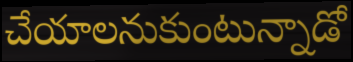
చేయాలనుకుంటున్నాడో